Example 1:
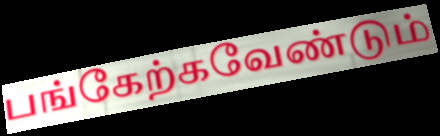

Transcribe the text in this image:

பங்கேற்கவேண்டும்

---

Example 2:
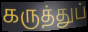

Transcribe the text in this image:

கருத்துப்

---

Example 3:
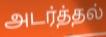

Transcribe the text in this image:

அடர்த்தல்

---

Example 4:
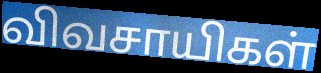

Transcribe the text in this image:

விவசாயிகள்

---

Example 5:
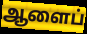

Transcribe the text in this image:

ஆளைப்